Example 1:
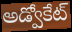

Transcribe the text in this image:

అడ్వోకేట్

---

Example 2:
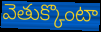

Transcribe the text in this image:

వెతుక్కొంటా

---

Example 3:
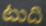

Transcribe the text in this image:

టుది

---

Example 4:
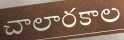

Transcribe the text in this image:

చాలారకాల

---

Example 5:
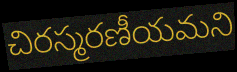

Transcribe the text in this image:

చిరస్మరణీయమని